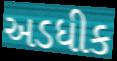
અડધીક